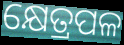
କ୍ଷେତ୍ରପଳ